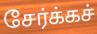
சேர்க்கச்